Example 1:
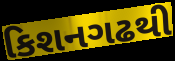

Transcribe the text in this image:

કિશનગઢથી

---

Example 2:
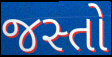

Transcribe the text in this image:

જસ્તો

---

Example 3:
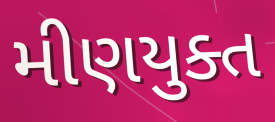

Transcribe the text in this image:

મીણયુક્ત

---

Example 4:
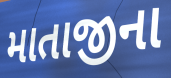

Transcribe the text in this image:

માતાજીના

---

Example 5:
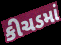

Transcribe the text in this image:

કીચડમાં